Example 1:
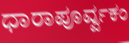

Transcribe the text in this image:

ಧಾರಾಪೂರ್ವ್ವಕಂ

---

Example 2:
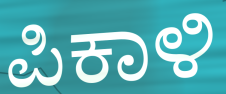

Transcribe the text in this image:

ಪಿಕಾಳಿ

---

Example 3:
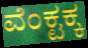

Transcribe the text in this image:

ವೆಂಕ್ಟಕ್ಕ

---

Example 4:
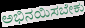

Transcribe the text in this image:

ಅಭಿನಯಿಸಬೇಕು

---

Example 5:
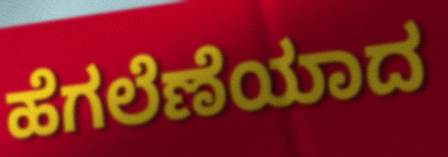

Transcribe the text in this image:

ಹೆಗಲೆಣೆಯಾದ